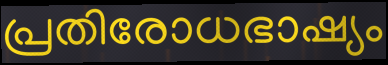
പ്രതിരോധഭാഷ്യം